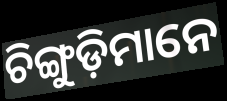
ଚିଙ୍ଗୁଡ଼ିମାନେ